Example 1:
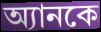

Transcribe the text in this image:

অ্যানকে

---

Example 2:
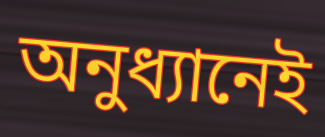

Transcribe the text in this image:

অনুধ্যানেই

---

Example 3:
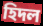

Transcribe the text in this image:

হিদল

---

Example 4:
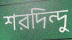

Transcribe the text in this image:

শরদিন্দু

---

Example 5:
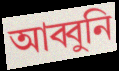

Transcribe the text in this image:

আব্বুনি